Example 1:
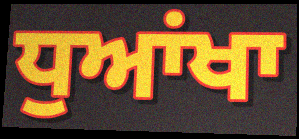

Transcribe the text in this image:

ਧੁਆਂਖਾ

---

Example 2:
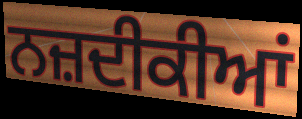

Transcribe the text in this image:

ਨਜ਼ਦੀਕੀਆਂ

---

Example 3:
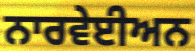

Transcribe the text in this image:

ਨਾਰਵੇਈਅਨ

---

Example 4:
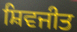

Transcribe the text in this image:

ਸ਼ਿਵਜੀਤ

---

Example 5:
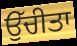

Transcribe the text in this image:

ਉੱਚੀਤਾ